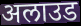
अलाउड